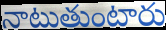
నాటుతుంటారు